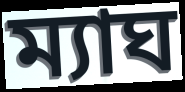
ম্যাঘ